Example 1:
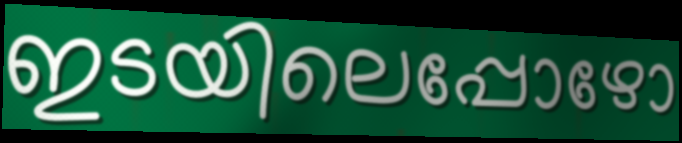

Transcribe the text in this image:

ഇടയിലെപ്പോഴോ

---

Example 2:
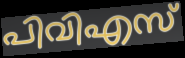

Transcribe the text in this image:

പിവിഎസ്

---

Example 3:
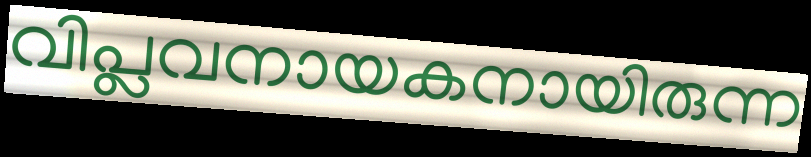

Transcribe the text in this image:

വിപ്ലവനായകനായിരുന്ന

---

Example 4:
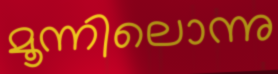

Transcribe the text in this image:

മൂന്നിലൊന്നു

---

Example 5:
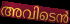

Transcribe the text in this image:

അവിടെൻ